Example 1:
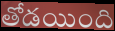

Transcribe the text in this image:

తోడయింది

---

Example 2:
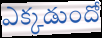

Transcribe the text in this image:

ఎక్కడుందో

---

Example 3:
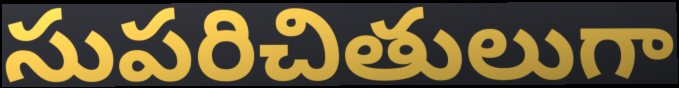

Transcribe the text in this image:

సుపరిచితులుగా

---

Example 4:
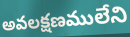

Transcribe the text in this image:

అవలక్షణములేని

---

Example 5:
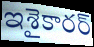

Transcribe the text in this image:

ఇశైకారర్